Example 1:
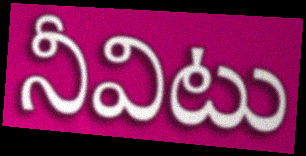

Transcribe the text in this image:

నీవిటు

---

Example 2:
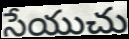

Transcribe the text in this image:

సేయుచు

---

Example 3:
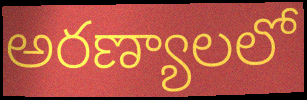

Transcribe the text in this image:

అరణ్యాలలో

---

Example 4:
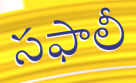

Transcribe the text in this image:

సఫాలీ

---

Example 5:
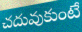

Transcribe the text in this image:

చదువుకుంటే